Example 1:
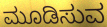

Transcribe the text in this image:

ಮೂಡಿಸುವ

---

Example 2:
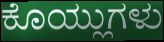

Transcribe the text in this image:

ಕೊಯ್ಲುಗಳು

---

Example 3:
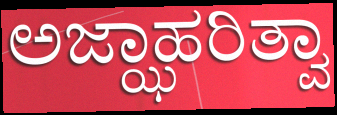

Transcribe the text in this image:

ಅಜ್ಝಾಹರಿತ್ವಾ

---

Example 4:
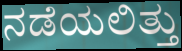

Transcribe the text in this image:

ನಡೆಯಲಿತ್ತು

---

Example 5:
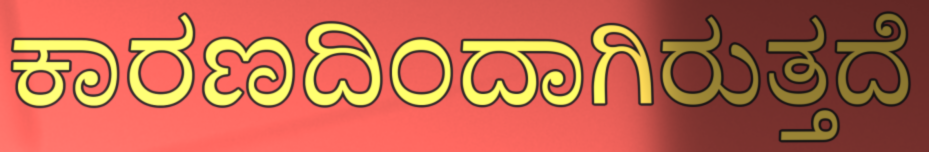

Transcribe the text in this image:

ಕಾರಣದಿಂದಾಗಿರುತ್ತದೆ